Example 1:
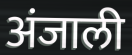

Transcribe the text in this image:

अंजाली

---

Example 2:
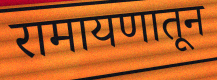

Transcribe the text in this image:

रामायणातून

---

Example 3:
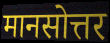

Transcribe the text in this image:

मानसोत्तर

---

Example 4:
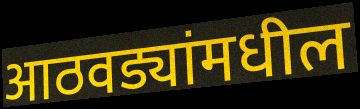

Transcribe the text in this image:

आठवड्यांमधील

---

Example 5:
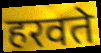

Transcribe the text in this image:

हरवते